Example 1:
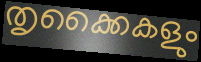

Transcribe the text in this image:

തൃക്കൈകളും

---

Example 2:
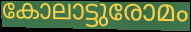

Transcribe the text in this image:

കോലാട്ടുരോമം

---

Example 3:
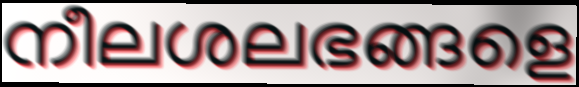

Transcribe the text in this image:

നീലശലഭങ്ങളെ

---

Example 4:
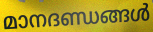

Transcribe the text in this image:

മാനദണ്ഡങ്ങൾ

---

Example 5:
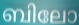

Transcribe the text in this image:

ബിലോ